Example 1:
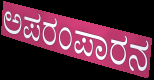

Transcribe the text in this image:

ಅಪರಂಪಾರನ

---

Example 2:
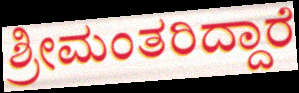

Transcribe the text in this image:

ಶ್ರೀಮಂತರಿದ್ದಾರೆ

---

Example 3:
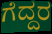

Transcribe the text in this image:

ಗೆದ್ದರ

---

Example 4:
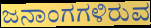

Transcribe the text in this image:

ಜನಾಂಗಗಳಿರುವ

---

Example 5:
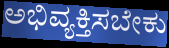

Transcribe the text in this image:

ಅಭಿವ್ಯಕ್ತಿಸಬೇಕು